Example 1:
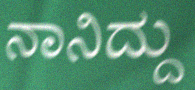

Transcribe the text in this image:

ನಾನಿದ್ದು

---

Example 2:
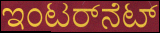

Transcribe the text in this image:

ಇಂಟರ್‌ನೆಟ್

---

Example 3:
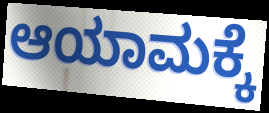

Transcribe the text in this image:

ಆಯಾಮಕ್ಕೆ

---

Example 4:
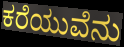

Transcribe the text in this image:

ಕರೆಯುವೆನು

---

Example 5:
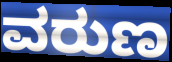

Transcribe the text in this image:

ವರುಣ